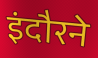
इंदौरने